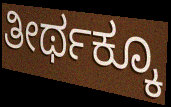
ತೀರ್ಥಕ್ಕೂ